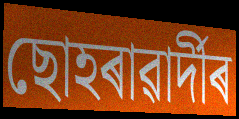
ছোহৰাৱাৰ্দীৰ